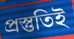
প্রস্তুতিই